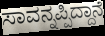
ಸಾವನ್ನಪ್ಪಿದ್ದಾನೆ